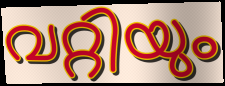
വറ്റിയും